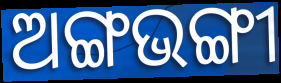
ଅଙ୍ଗଭଙ୍ଗୀ